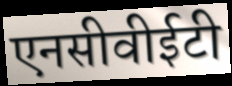
एनसीवीईटी